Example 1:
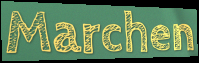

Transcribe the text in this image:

Marchen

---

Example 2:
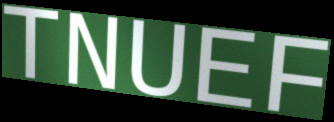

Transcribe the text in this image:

TNUEF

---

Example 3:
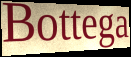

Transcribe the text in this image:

Bottega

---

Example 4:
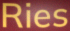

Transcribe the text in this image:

Ries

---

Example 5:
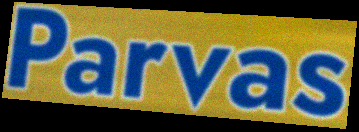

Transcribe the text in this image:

Parvas